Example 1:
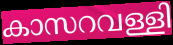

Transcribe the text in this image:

കാസറവള്ളി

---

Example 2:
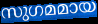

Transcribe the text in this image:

സുഗമമായ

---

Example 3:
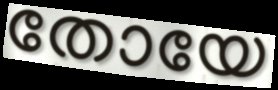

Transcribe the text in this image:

തോയേ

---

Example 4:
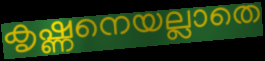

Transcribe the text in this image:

കൃഷ്ണനെയല്ലാതെ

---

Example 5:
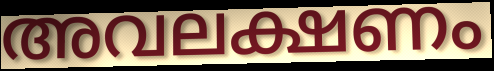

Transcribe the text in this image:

അവലക്ഷണം